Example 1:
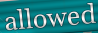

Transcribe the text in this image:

allowed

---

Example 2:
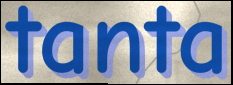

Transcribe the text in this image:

tanta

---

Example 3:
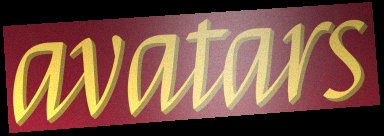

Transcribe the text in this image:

avatars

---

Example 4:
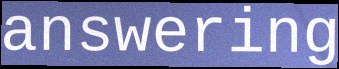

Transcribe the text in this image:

answering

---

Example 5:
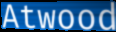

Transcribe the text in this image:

Atwood